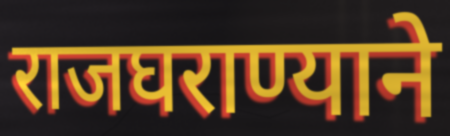
राजघराण्याने